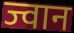
ज्वान